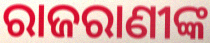
ରାଜରାଣୀଙ୍କ